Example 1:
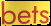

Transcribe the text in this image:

bets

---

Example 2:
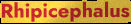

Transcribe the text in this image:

Rhipicephalus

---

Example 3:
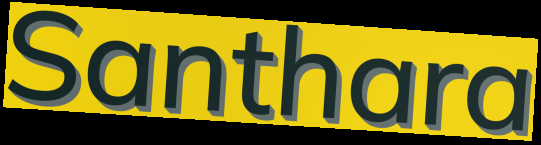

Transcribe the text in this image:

Santhara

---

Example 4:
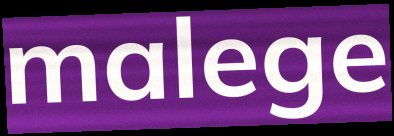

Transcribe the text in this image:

malege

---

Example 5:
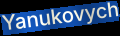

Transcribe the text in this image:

Yanukovych